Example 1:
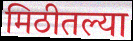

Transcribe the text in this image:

मिठीतल्या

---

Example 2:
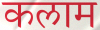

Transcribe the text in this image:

कलाम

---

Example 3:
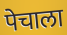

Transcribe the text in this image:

पेचाला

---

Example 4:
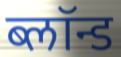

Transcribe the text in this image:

ब्लॉन्ड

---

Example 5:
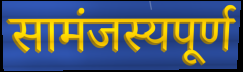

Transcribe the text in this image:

सामंजस्यपूर्ण